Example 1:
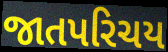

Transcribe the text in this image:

જાતપરિચય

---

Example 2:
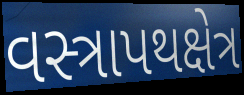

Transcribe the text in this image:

વસ્ત્રાપથક્ષેત્ર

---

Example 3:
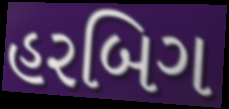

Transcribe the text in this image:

હરબિગ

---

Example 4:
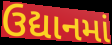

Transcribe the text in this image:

ઉદ્યાનમાં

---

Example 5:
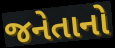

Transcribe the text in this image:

જનેતાનો